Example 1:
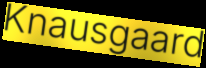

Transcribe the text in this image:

Knausgaard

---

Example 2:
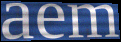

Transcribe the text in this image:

aem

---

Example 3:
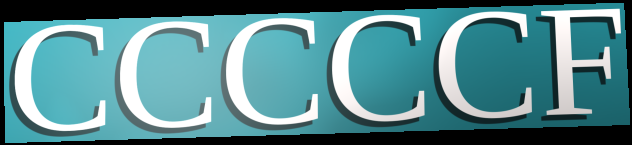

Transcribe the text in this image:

CCCCCF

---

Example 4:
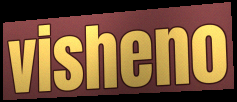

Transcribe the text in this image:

visheno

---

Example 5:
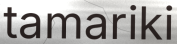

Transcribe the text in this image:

tamariki